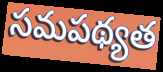
సమపథ్యత